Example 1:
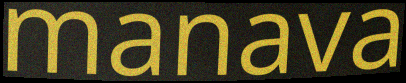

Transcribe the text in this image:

manava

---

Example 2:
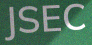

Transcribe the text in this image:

JSEC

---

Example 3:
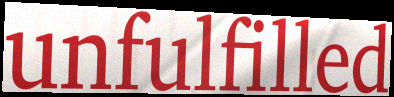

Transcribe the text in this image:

unfulfilled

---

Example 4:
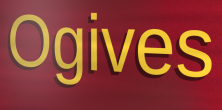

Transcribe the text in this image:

Ogives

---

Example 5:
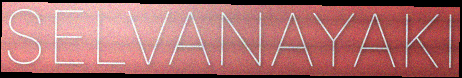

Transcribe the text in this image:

SELVANAYAKI